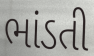
ભાંડતી